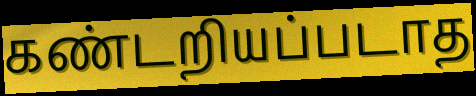
கண்டறியப்படாத